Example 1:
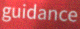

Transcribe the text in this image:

guidance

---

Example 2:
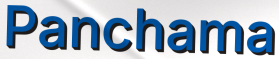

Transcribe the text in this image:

Panchama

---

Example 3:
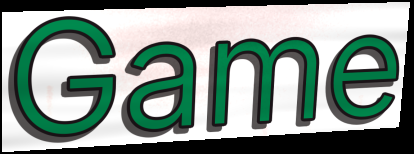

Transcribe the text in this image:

Game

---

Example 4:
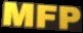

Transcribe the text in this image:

MFP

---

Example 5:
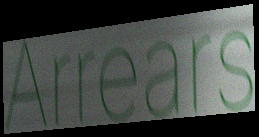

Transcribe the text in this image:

Arrears